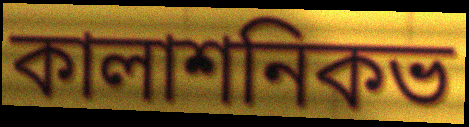
কালাশনিকভ